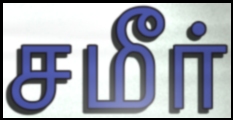
சமீர்